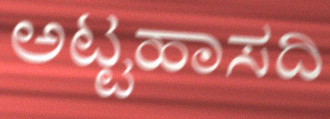
ಅಟ್ಟಹಾಸದಿ